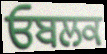
ਓਬਲਕ